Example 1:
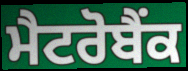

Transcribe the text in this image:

ਮੈਟਰੋਬੈਂਕ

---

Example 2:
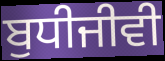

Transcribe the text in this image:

ਬੁਧੀਜੀਵੀ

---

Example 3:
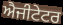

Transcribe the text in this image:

ਐਜੀਟੇਟਰ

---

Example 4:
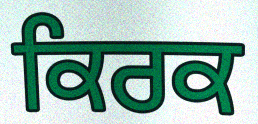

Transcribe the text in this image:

ਕਿਰਕ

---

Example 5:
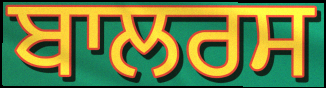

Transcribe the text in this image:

ਬਾਲਰਸ